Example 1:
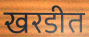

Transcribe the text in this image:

खरडीत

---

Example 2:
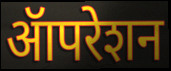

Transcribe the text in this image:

ॲापरेशन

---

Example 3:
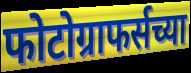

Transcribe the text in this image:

फोटोग्राफर्सच्या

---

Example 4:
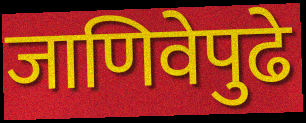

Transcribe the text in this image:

जाणिवेपुढे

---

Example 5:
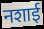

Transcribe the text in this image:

नशाई